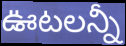
ఊటలన్నీ